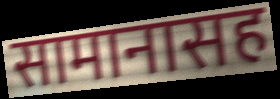
सामानासह